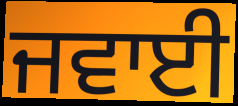
ਜਵਾਈ